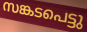
സങ്കടപെട്ടു